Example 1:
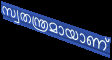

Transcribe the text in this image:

സ്വതന്ത്രമായാണ്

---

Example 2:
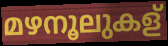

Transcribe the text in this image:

മഴനൂലുകള്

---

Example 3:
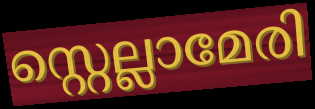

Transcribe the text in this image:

സ്റ്റെല്ലാമേരി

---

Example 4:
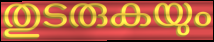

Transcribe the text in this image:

തുടരുകയും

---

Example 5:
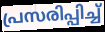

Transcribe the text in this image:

പ്രസരിപ്പിച്ച്